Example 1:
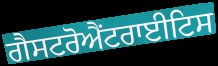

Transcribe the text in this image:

ਗੈਸਟਰੋਐਂਟਰਾਈਟਿਸ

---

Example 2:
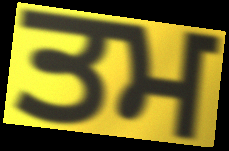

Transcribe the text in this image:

ਤਮ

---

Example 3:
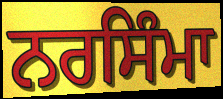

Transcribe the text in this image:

ਨਰਸਿੰਮਾ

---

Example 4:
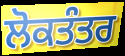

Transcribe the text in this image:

ਲੋਕਤੰਤਰ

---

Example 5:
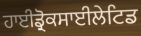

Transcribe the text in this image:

ਹਾਈਡ੍ਰੋਕਸਾਈਲੇਟਿਡ